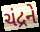
ચંદ્રને